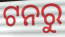
ଟନରୁ